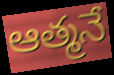
ఆత్మనే